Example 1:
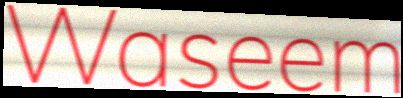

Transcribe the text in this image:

Waseem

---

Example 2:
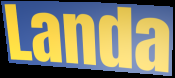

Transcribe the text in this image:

Landa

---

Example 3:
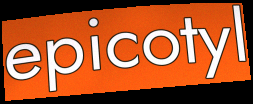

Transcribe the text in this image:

epicotyl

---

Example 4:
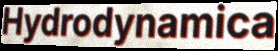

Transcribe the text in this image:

Hydrodynamica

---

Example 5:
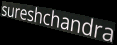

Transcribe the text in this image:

sureshchandra